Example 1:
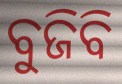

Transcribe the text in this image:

ବୁଜିବି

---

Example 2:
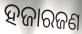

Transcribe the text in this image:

ହଜାରଜଣ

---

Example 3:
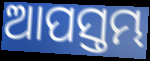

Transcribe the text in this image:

ଆପସ୍ତମ୍ଭ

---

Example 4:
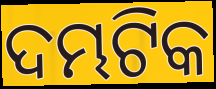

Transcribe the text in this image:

ଦମ୍ଭଟିକ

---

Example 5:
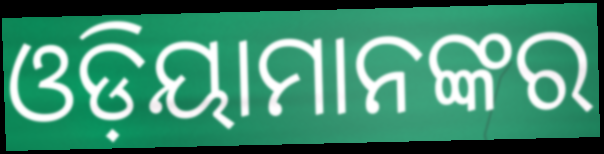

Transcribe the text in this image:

ଓଡ଼ିୟାମାନଙ୍କର